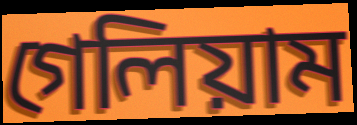
গেলিয়াম